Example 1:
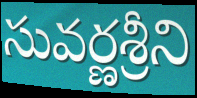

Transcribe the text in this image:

సువర్ణశ్రీని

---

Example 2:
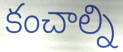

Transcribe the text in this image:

కంచాల్ని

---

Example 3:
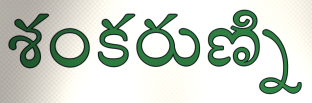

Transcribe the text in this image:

శంకరుణ్ని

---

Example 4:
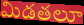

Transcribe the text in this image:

మిడతలూ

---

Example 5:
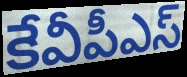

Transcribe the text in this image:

కేవీపీఎస్